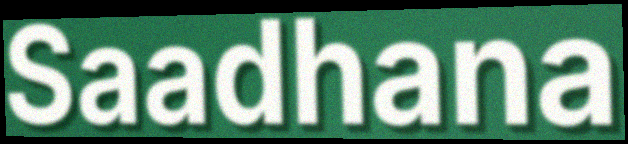
Saadhana